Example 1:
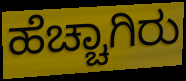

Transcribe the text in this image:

ಹೆಚ್ಚಾಗಿರು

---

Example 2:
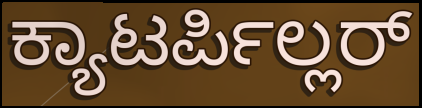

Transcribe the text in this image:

ಕ್ಯಾಟರ್ಪಿಲ್ಲರ್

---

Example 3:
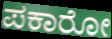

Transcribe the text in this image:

ಪಕಾರೋ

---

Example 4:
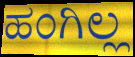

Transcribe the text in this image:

ಹಂಗಿಲ್ಲ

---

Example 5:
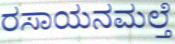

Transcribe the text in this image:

ರಸಾಯನಮಲ್ತೆ